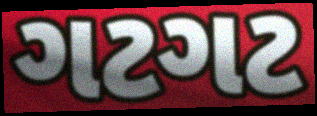
ગટગટ